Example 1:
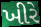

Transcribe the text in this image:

ખીરે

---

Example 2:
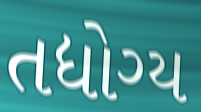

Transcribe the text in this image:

તદ્યોગ્ય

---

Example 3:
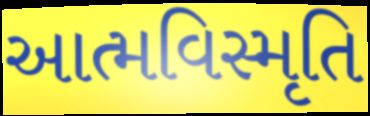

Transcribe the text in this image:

આત્મવિસ્મૃતિ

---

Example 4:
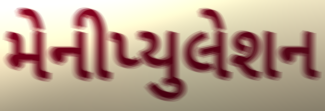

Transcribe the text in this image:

મેનીપ્યુલેશન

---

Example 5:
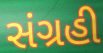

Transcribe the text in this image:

સંગ્રહી